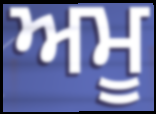
ਅਮੂ